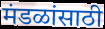
मंडळांसाठी